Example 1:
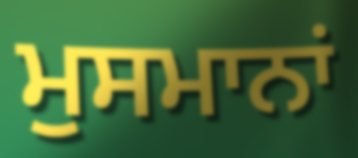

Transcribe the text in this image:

ਮੁਸਮਾਨਾਂ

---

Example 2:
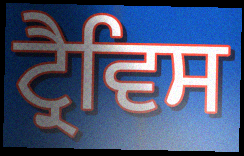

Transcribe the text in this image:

ਟ੍ਰੈਵਿਸ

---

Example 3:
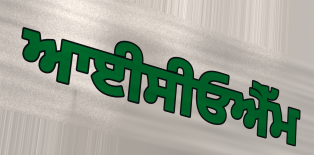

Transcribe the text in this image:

ਆਈਸੀਓਐੱਮ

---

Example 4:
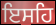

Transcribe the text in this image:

ਇਸਹਿ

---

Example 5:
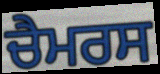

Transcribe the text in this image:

ਚੈਮਰਸ